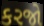
કરજો